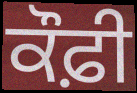
ਕੌਫ਼ੀ